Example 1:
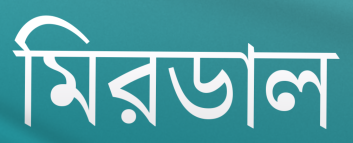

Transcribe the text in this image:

মিরডাল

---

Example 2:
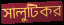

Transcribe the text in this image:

সালুটিকর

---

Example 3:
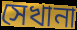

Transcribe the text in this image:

সেখানা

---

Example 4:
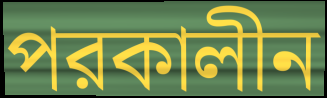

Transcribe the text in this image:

পরকালীন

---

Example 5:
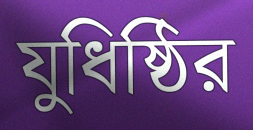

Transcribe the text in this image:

যুধিষ্ঠির